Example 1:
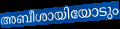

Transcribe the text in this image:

അബീശായിയോടും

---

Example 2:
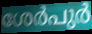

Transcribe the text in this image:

ശേർപുർ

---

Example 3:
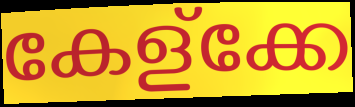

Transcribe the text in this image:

കേള്ക്കേ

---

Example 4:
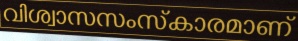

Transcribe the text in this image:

വിശ്വാസസംസ്‌കാരമാണ്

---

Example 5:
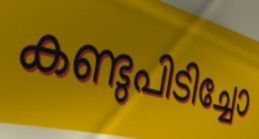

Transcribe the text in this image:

കണ്ടുപിടിച്ചോ